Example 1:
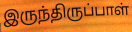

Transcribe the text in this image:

இருந்திருப்பாள்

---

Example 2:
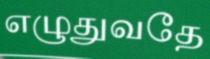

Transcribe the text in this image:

எழுதுவதே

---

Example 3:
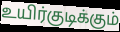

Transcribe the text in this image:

உயிர்குடிக்கும்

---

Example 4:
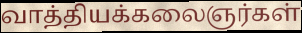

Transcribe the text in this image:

வாத்தியக்கலைஞர்கள்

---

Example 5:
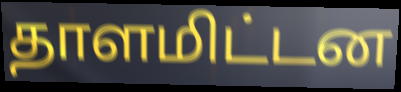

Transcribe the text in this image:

தாளமிட்டன